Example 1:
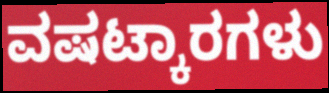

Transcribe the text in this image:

ವಷಟ್ಕಾರಗಳು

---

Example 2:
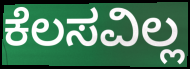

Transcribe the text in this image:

ಕೆಲಸವಿಲ್ಲ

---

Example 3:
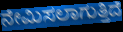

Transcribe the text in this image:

ನೇಮಿಸಲಾಗುತ್ತಿದೆ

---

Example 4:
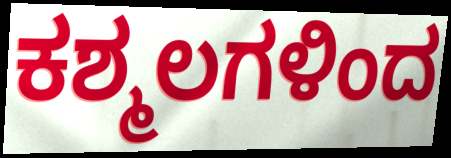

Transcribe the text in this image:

ಕಶ್ಮಲಗಳಿಂದ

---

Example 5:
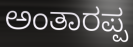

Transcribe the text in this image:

ಅಂತಾರಪ್ಪ